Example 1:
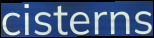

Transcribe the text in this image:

cisterns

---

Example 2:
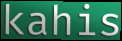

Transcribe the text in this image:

kahis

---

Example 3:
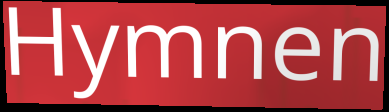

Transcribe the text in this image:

Hymnen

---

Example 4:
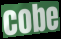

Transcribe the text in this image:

cobe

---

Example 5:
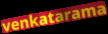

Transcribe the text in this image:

venkatarama